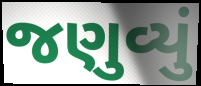
જણુવ્યું